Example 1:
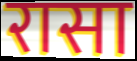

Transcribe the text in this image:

रासा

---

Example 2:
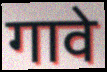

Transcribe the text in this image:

गावे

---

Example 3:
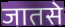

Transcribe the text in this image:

जातसे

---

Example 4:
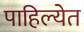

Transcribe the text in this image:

पाहिल्येत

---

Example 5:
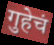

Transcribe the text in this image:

गुहेचं